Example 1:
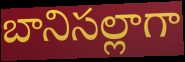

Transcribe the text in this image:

బానిసల్లాగా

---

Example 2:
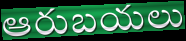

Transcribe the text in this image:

ఆరుబయలు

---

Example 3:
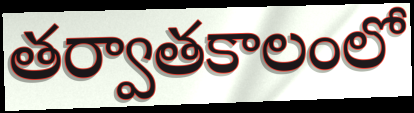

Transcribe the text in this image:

తర్వాతకాలంలో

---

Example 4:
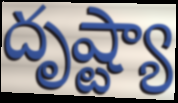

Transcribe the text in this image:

దృష్ట్యా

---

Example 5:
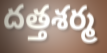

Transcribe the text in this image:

దత్తశర్మ